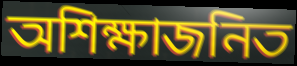
অশিক্ষাজনিত